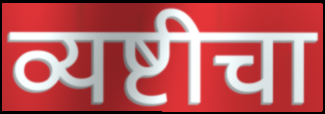
व्यष्टीचा